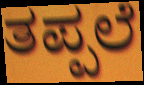
ತಪ್ಪಲೆ